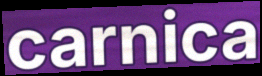
carnica